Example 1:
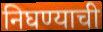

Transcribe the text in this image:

निघण्याची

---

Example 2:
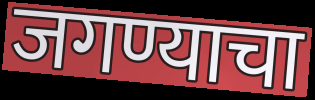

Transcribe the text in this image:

जगण्याचा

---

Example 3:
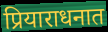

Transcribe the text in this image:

प्रियाराधनात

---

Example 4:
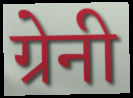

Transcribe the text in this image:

ग्रेनी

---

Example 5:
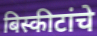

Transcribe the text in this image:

बिस्कीटांचे